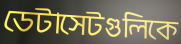
ডেটাসেটগুলিকে